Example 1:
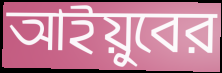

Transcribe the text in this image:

আইয়ুবের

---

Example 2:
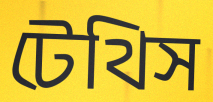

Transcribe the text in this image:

টেথিস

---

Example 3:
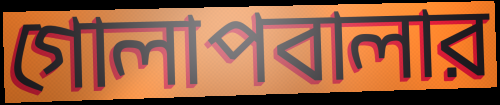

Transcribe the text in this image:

গোলাপবালার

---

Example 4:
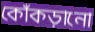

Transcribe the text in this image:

কোঁকড়ানো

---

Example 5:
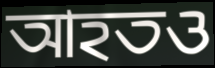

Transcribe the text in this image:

আহতও